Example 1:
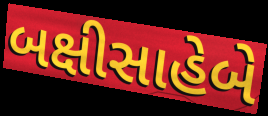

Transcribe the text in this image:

બક્ષીસાહેબે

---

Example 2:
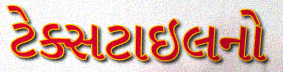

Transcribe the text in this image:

ટેક્સટાઇલનો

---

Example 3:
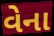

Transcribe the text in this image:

વેના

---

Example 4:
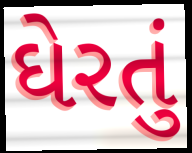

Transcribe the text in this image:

ઘેરતું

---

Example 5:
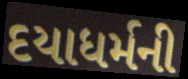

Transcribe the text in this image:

દયાધર્મની